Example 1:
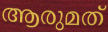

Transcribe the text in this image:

ആരുമത്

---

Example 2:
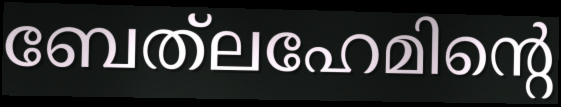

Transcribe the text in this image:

ബേത്‌ലഹേമിന്റെ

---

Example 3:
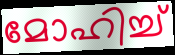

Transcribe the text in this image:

മോഹിച്ച്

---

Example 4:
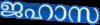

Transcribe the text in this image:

ജഹാസ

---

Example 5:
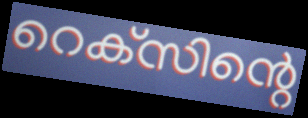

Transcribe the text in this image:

റെക്‌സിന്റെ